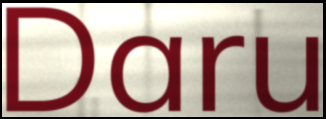
Daru